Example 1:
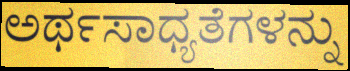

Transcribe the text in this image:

ಅರ್ಥಸಾಧ್ಯತೆಗಳನ್ನು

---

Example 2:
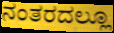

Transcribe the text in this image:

ನಂತರದಲ್ಲೂ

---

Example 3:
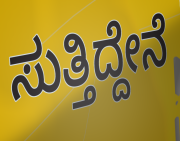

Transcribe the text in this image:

ಸುತ್ತಿದ್ದೇನೆ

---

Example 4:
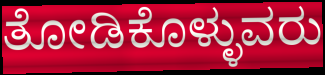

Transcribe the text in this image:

ತೋಡಿಕೊಳ್ಳುವರು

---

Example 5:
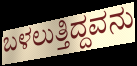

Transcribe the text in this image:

ಬಳಲುತ್ತಿದ್ದವನು